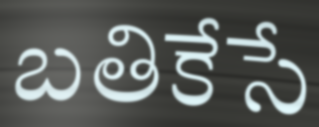
బతికేసే